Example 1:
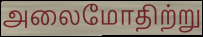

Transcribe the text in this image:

அலைமோதிற்று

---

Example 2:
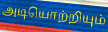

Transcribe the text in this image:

அடியொற்றியும்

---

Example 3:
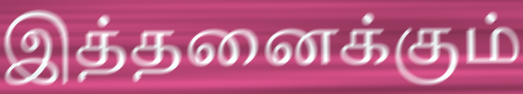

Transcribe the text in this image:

இத்தனைக்கும்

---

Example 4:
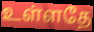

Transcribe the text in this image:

உள்ளதே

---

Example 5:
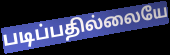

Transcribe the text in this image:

படிப்பதில்லையே